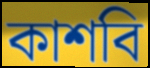
কাশবি